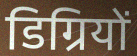
डिग्रियों